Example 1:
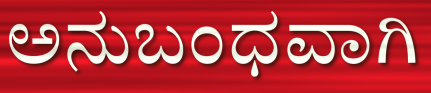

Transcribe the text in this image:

ಅನುಬಂಧವಾಗಿ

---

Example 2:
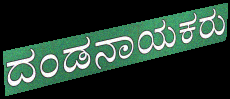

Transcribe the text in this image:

ದಂಡನಾಯಕರು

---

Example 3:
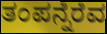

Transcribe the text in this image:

ತಂಪನ್ನೆರೆವ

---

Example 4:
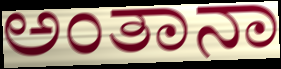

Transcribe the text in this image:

ಅಂತಾನಾ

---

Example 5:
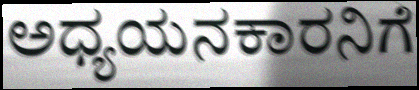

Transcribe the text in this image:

ಅಧ್ಯಯನಕಾರನಿಗೆ